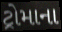
ટ્રોમાના